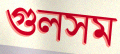
গুলসম